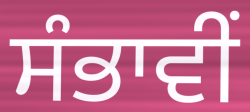
ਸੰਭਾਵੀਂ